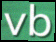
vb